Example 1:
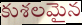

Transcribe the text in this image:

కుశలమైన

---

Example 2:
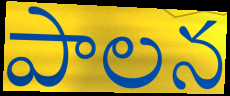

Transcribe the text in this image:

పాలన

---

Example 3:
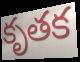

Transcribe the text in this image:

కృతక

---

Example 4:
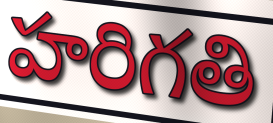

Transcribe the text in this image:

హరిగతి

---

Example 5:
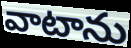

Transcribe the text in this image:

వాటాను